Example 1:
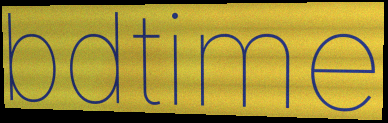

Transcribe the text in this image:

bdtime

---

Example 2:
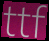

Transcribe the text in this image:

ttf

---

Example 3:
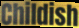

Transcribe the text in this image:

Childish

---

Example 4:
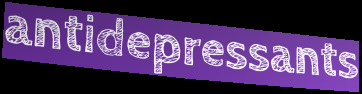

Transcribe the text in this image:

antidepressants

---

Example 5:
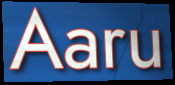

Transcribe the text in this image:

Aaru